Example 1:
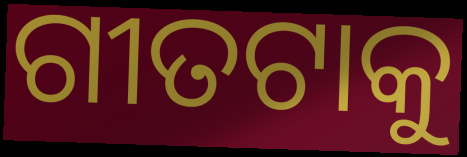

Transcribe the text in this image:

ଗୀତଟାକୁ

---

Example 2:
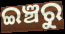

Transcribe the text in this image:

ଇଞ୍ଚରୁ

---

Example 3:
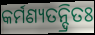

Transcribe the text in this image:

କର୍ମଣ୍ୟତନ୍ଦ୍ରିତଃ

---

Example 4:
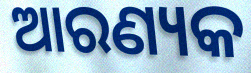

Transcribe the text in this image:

ଆରଣ୍ୟକ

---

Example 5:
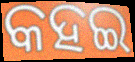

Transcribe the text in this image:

କହଇ